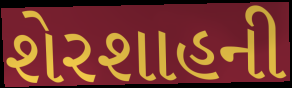
શેરશાહની